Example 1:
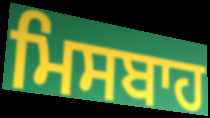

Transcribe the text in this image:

ਮਿਸਬਾਹ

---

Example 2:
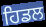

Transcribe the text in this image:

ਹਿਡਲ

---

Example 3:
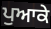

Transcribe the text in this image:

ਪੁਆਕੇ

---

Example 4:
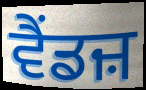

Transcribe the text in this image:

ਵੈਂਡਜ਼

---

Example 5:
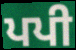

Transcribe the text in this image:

ਪਪੀ